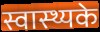
स्वास्थ्यके